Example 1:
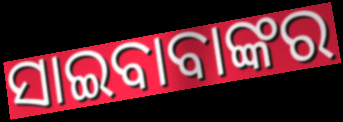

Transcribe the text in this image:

ସାଇବାବାଙ୍କର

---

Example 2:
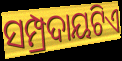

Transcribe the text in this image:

ସମ୍ପ୍ରଦାୟଟିଏ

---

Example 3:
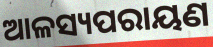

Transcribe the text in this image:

ଆଳସ୍ୟପରାୟଣ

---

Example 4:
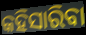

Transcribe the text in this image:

କହିସାରିବା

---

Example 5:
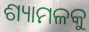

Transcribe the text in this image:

ଶ୍ୟାମଳକୁ